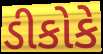
ડીકોકે